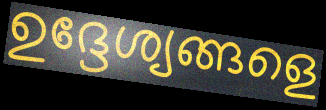
ഉദ്ദേശ്യങ്ങളെ